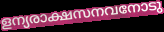
ളന്യരാക്ഷസനവനോടു